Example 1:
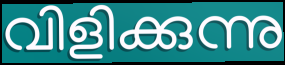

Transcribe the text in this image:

വിളിക്കുന്നു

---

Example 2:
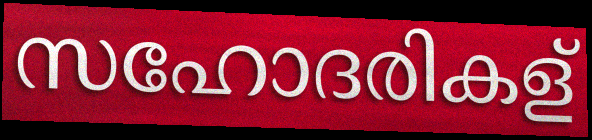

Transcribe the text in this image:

സഹോദരികള്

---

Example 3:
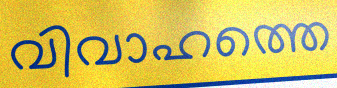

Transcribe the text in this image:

വിവാഹത്തെ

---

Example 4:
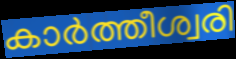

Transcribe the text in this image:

കാർത്തീശ്വരി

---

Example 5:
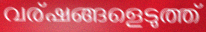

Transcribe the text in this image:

വര്ഷങ്ങളെടുത്ത്